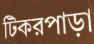
টিকরপাড়া